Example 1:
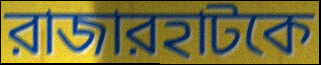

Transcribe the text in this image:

রাজারহাটকে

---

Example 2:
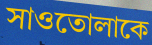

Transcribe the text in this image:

সাওতোলাকে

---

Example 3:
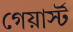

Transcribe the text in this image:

গেয়ার্স্ট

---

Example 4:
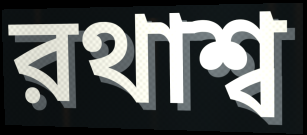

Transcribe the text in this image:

রথাশ্ব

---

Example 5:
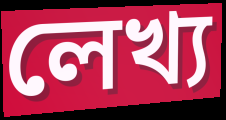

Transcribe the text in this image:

লেখ্য